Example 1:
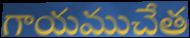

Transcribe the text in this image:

గాయముచేత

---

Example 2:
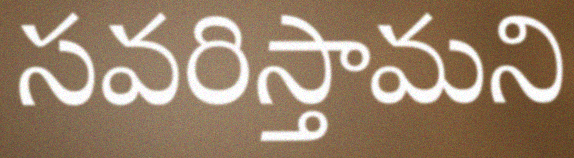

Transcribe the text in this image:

సవరిస్తామని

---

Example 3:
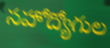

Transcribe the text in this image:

సహోద్యోగుల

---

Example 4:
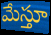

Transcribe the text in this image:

మేస్తూ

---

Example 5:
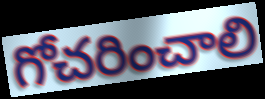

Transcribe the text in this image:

గోచరించాలి